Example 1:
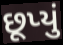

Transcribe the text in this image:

છૂપ્યું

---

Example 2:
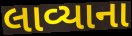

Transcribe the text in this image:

લાવ્યાના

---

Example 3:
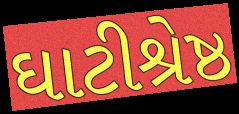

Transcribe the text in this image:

ઘાટીશ્રેષ્ઠ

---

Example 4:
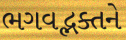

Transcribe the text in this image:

ભગવદ્ભક્તને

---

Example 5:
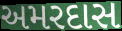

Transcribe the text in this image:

અમરદાસ